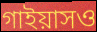
গাইয়াসও